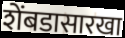
शेंबडासारखा